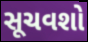
સૂચવશો